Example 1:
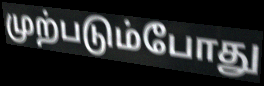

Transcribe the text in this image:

முற்படும்போது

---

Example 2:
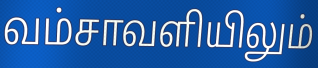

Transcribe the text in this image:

வம்சாவளியிலும்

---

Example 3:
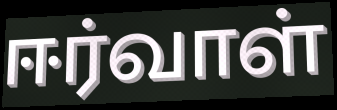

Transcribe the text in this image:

ஈர்வாள்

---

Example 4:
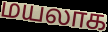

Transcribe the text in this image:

மயலாக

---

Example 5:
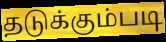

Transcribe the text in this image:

தடுக்கும்படி